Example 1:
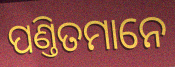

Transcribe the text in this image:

ପଣ୍ତିତମାନେ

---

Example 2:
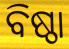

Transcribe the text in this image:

ବିଷ୍ଠା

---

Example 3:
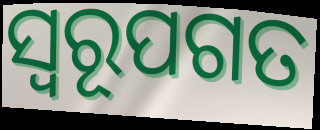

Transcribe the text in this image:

ସ୍ଵରୂପଗତ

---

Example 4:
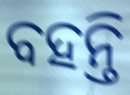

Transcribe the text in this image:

ବହନ୍ତି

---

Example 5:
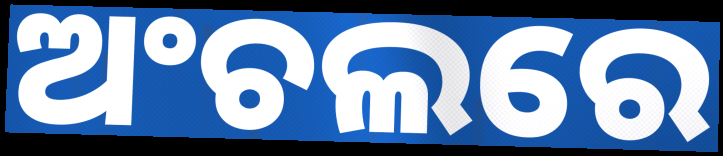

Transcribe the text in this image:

ଅଂଚଲରେ